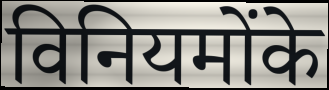
विनियमोंके